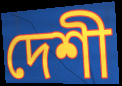
দেশী